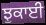
ਝੁਕਾਈ